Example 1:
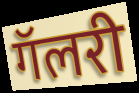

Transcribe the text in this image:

गॅलरी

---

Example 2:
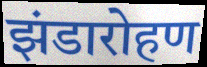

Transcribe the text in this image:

झंडारोहण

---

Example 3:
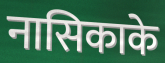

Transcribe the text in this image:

नासिकाके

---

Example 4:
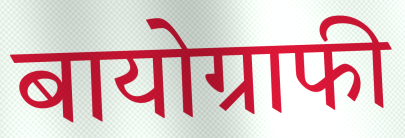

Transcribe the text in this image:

बायोग्राफी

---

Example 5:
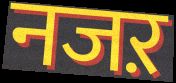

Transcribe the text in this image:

नजऱ